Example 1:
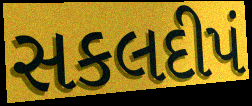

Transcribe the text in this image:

સકલદીપં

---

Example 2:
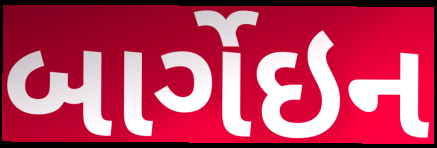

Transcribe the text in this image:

બાર્ગેઇન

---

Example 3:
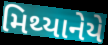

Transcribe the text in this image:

મિથ્યાનેયે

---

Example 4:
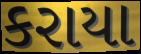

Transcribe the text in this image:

કરાયા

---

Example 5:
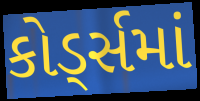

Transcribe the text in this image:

કોર્ડ્સમાં